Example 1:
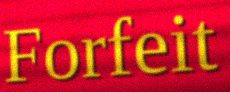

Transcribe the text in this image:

Forfeit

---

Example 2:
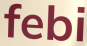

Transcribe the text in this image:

febi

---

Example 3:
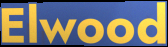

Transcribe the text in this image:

Elwood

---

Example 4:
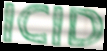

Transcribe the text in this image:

ICID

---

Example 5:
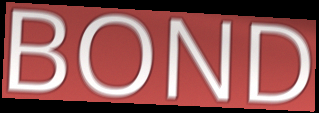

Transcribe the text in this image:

BOND